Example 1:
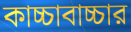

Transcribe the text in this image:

কাচ্চাবাচ্চার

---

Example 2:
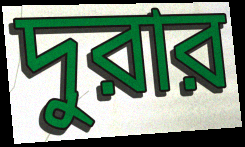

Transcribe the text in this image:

দুরার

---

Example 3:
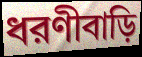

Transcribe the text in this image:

ধরণীবাড়ি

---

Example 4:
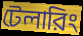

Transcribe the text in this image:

টেলারিং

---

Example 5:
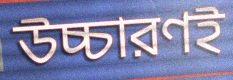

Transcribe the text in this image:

উচ্চারণই